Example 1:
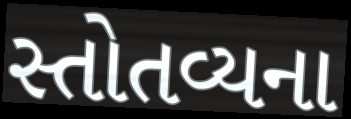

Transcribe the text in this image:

સ્તોતવ્યના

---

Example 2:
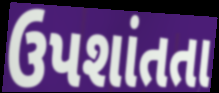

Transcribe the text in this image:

ઉપશાંતતા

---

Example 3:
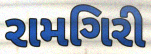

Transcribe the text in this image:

રામગિરી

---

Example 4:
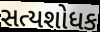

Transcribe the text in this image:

સત્યશોધક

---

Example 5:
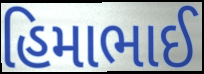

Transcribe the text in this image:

હિમાભાઈ